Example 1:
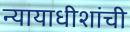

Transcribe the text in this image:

न्यायाधीशांची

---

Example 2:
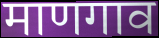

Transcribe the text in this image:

माणगाव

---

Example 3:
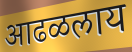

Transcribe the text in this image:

आढळलाय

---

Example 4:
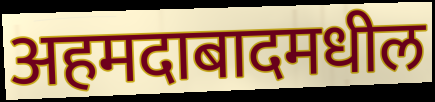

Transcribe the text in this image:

अहमदाबादमधील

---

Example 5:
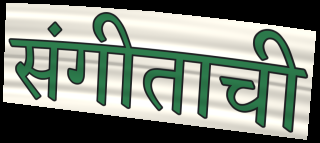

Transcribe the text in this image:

संगीताची